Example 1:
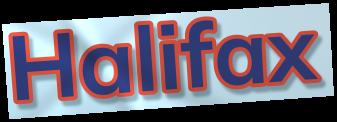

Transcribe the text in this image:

Halifax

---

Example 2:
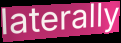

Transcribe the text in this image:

laterally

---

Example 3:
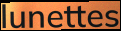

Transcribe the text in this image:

lunettes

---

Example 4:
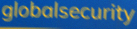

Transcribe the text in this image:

globalsecurity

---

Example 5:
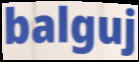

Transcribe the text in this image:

balguj